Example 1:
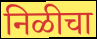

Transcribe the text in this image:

निळीचा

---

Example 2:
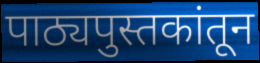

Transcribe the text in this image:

पाठ्यपुस्तकांतून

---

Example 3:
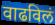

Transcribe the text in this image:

वाढविलं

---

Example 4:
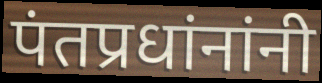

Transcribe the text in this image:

पंतप्रधांनांनी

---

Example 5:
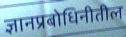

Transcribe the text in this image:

ज्ञानप्रबोधिनीतील